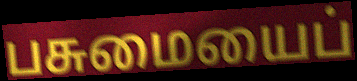
பசுமையைப்